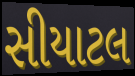
સીયાટલ